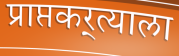
प्राप्तकर्त्याला